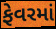
ફેવરમાં